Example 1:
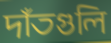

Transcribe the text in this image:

দাঁতগুলি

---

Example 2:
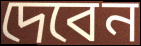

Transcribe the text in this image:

দেবেন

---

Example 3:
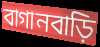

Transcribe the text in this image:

বাগানবাড়ি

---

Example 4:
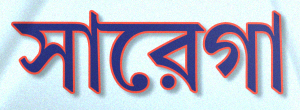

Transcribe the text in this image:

সারেগা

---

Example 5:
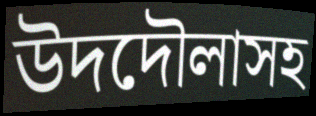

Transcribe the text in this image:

উদদৌলাসহ